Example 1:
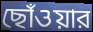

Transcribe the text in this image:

ছোঁওয়ার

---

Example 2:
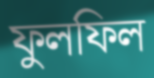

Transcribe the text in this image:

ফুলফিল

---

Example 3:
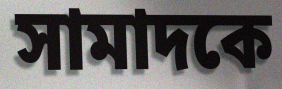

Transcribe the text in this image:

সামাদকে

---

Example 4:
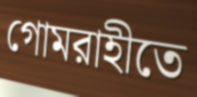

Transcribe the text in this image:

গোমরাহীতে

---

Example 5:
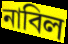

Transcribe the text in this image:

নাবিল